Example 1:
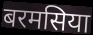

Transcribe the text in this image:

बरमसिया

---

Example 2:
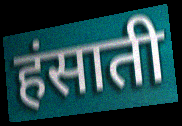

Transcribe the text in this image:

हंसाती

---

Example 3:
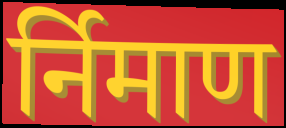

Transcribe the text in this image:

र्निमाण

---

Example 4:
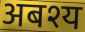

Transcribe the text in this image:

अबश्य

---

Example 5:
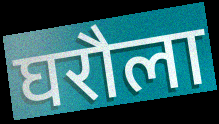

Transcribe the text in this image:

घरौला